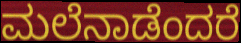
ಮಲೆನಾಡೆಂದರೆ